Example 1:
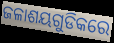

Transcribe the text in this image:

ଜଳାଶୟଗୁଡିକରେ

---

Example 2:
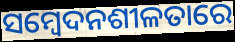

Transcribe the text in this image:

ସମ୍ବେଦନଶୀଳତାରେ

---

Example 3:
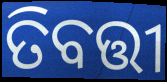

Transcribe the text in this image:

ତିବତ୍ତୀ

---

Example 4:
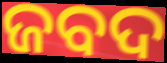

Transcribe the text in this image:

ଜବଦ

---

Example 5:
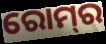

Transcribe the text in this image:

ରୋମ୍‍ର